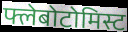
फ्लेबोटोमिस्ट